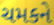
ચમકને